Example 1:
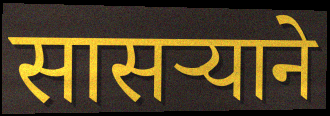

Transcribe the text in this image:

सासऱ्याने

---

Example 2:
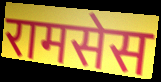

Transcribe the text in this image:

रामसेस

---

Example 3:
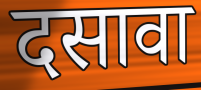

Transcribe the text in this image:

दसावा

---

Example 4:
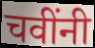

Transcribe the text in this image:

चवींनी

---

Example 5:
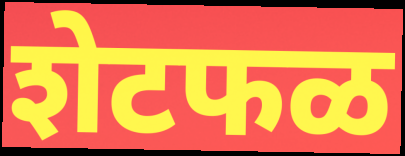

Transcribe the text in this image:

शेटफळ